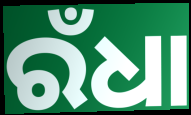
ରଁଧା